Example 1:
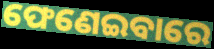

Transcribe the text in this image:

ଫେଣେଇବାରେ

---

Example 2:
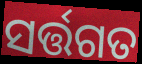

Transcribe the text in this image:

ସର୍ତ୍ତଗତ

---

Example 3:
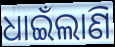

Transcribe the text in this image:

ଧାଇଁଲାଣି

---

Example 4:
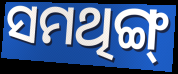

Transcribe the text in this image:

ସମଥିଙ୍ଗ୍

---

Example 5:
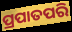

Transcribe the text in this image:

ପ୍ରପାତପରି